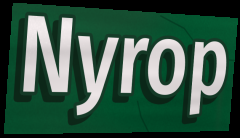
Nyrop